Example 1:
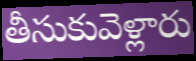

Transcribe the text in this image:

తీసుకువెళ్లారు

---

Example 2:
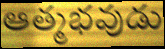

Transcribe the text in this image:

ఆత్మభవుడు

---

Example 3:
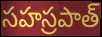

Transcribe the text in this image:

సహస్రపాత్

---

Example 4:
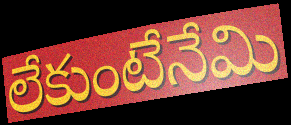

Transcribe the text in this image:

లేకుంటేనేమి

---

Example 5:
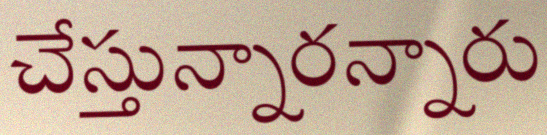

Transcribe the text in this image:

చేస్తున్నారన్నారు